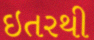
ઇતરથી